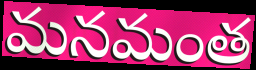
మనమంత